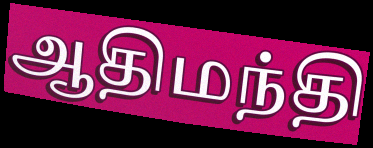
ஆதிமந்தி